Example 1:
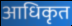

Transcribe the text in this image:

आधिकृत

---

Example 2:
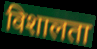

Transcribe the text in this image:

विशालता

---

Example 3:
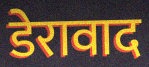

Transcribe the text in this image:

डेरावाद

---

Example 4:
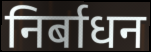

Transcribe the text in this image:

निर्बाधन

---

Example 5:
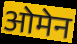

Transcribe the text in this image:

ओमेन